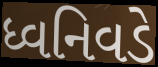
ધ્વનિવડે